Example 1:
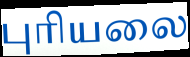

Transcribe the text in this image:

புரியலை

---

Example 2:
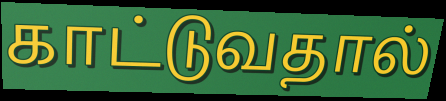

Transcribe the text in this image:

காட்டுவதால்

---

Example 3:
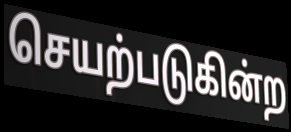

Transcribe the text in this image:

செயற்படுகின்ற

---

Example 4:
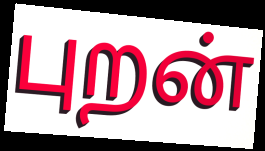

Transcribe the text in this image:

புறன்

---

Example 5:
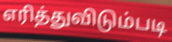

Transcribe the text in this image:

எரித்துவிடும்படி